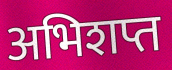
अभिशप्त